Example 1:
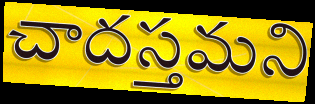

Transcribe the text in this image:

చాదస్తమని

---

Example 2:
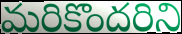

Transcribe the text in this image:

మరికొందరిని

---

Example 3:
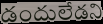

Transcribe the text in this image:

డందులేడని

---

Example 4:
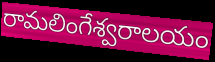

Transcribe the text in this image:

రామలింగేశ్వరాలయం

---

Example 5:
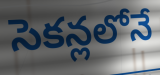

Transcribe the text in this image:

సెకన్లలోనే